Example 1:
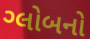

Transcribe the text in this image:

ગ્લોબનો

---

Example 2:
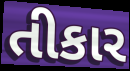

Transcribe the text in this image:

તીકાર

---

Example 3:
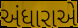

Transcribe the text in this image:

અંધારાએ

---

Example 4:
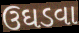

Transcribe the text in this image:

ઉઘડવા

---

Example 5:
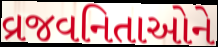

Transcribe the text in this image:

વ્રજવનિતાઓને